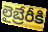
లైబ్రేరీకి